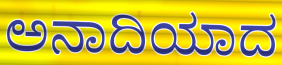
ಅನಾದಿಯಾದ